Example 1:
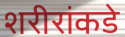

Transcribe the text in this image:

शरीरांकडे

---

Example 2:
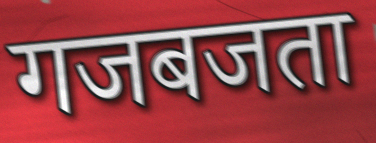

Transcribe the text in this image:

गजबजता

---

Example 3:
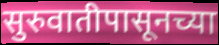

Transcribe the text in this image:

सुरुवातीपासूनच्या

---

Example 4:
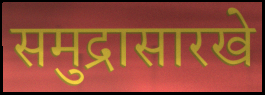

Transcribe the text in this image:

समुद्रासारखे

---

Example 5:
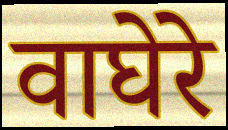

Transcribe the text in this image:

वाघेरे